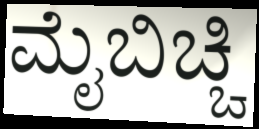
ಮೈಬಿಚ್ಚಿ